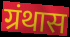
ग्रंथास